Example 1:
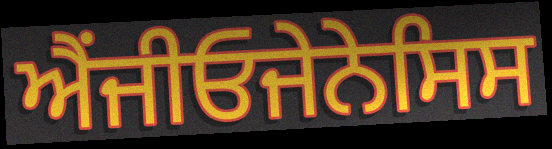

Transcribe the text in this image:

ਐਂਜੀਓਜੇਨੇਸਿਸ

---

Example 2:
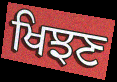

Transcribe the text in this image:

ਖਿਝਣ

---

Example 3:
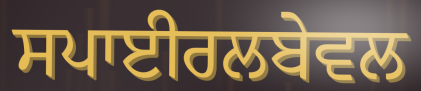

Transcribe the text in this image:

ਸਪਾਈਰਲਬੇਵਲ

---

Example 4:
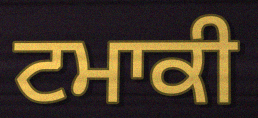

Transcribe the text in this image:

ਟਮਾਕੀ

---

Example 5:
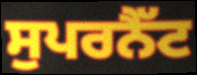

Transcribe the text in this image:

ਸੁਪਰਨੈੱਟ